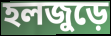
হলজুড়ে